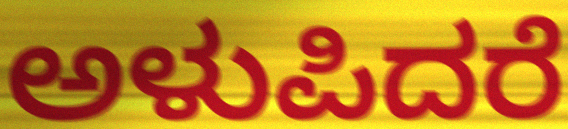
ಅಳುಪಿದರೆ